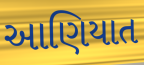
આણિયાત